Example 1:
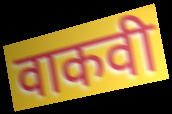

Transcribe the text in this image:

वाकवी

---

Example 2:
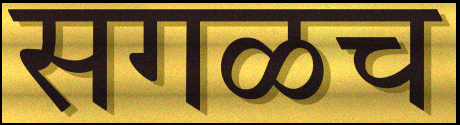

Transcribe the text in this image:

सगळच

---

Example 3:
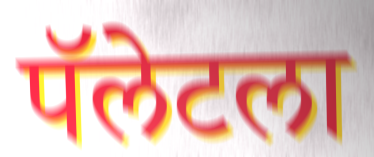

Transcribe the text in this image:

पॅलेटला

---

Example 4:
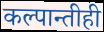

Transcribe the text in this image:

कल्पान्तीही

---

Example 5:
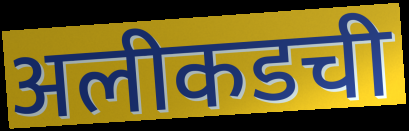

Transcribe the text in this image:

अलीकडची